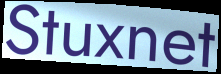
Stuxnet